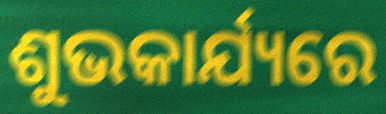
ଶୁଭକାର୍ଯ୍ୟରେ